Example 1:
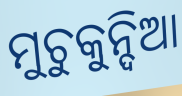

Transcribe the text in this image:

ମୁଚୁକୁନ୍ଦିଆ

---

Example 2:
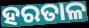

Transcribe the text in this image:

ହରତାଳ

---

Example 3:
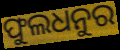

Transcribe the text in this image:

ଫୁଲଧନୁର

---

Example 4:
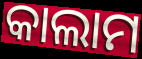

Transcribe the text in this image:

କାଲାମ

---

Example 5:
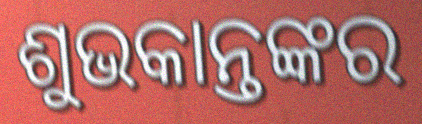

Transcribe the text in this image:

ଶୁଭକାନ୍ତଙ୍କର